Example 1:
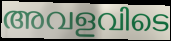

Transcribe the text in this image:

അവളവിടെ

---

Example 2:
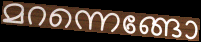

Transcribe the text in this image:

മറന്നെങ്ങോ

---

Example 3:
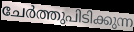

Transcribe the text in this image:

ചേർത്തുപിടിക്കുന്ന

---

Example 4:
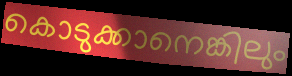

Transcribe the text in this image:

കൊടുക്കാനെങ്കിലും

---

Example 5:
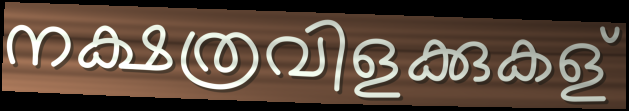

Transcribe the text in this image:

നക്ഷത്രവിളക്കുകള്